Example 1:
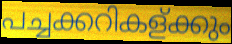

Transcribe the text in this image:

പച്ചക്കറികള്ക്കും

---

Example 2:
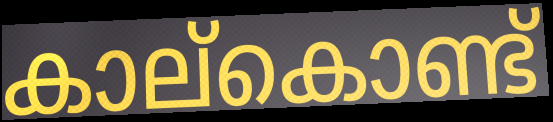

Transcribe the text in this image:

കാല്കൊണ്ട്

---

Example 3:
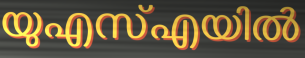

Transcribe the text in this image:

യുഎസ്എയിൽ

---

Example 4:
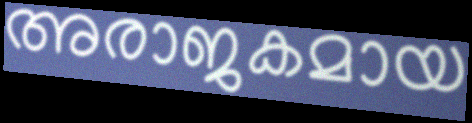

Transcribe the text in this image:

അരാജകമായ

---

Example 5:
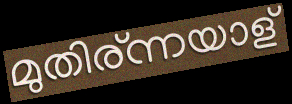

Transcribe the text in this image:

മുതിര്ന്നയാള്